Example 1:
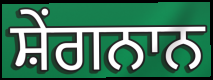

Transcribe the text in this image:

ਸ਼ੇਂਗਨਾਨ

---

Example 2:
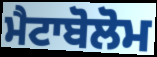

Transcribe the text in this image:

ਮੈਟਾਬੋਲੋਮ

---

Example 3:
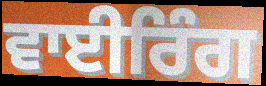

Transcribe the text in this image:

ਵਾਈਰਿੰਗ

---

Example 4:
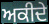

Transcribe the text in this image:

ਅਕੀਦੇ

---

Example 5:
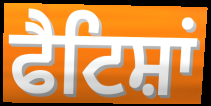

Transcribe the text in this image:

ਫੈਟਿਸ਼ਾਂ